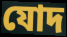
যোদ